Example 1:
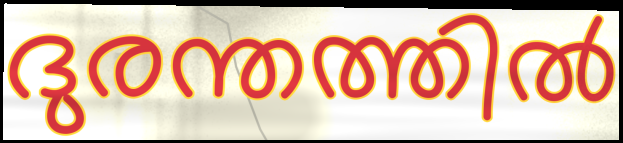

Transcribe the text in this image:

ദുരന്തത്തിൽ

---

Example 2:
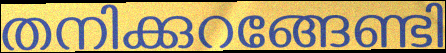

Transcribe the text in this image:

തനിക്കുറങ്ങേണ്ടി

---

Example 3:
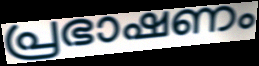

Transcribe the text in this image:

പ്രഭാഷണം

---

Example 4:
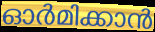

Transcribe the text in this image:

ഓർമിക്കാൻ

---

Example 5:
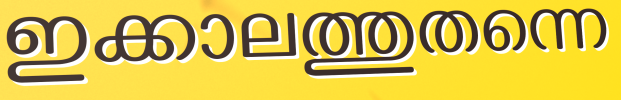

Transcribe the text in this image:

ഇക്കാലത്തുതന്നെ